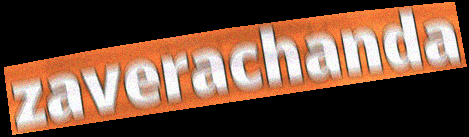
zaverachanda